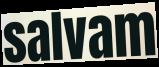
salvam